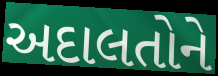
અદાલતોને